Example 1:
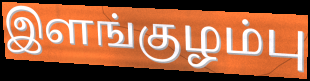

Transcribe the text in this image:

இளங்குழம்பு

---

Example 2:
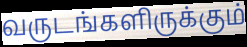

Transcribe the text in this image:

வருடங்களிருக்கும்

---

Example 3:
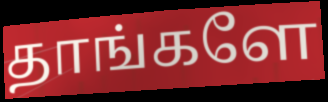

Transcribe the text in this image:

தாங்களே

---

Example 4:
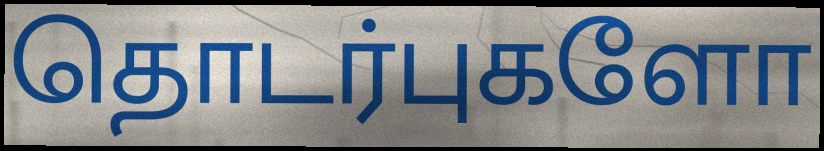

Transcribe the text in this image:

தொடர்புகளோ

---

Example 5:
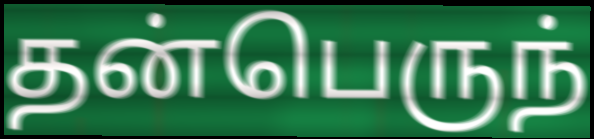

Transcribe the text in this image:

தன்பெருந்